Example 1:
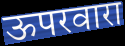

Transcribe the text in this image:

ऊपरवारा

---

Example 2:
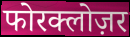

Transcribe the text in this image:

फोरक्लोज़र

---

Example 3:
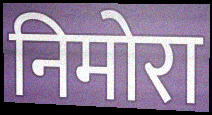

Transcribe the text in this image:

निमोरा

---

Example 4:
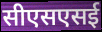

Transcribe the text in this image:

सीएसएसई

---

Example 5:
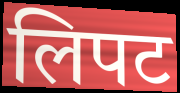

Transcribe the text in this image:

लिपट